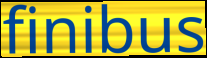
finibus